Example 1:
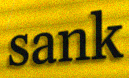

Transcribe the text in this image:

sank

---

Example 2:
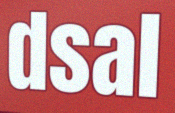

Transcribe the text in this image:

dsal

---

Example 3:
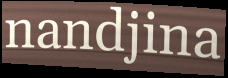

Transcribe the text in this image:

nandjina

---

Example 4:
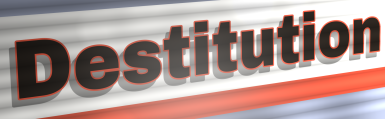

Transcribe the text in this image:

Destitution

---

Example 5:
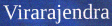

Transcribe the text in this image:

Virarajendra